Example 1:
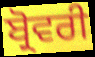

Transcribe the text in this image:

ਬ੍ਰੋਵਰੀ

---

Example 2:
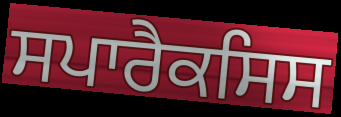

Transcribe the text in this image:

ਸਪਾਰੈਕਸਿਸ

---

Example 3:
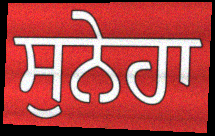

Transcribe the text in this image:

ਸੁਨੇਹਾ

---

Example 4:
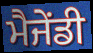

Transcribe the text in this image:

ਮੈਜੇਂਡੀ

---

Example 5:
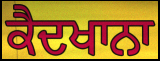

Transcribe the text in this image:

ਕੈਦਖਾਨਾ